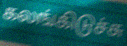
கலங்கிடுச்சு